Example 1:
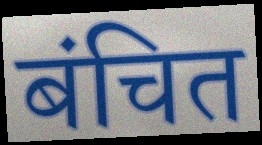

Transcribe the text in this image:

बंचित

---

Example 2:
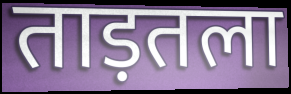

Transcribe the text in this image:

ताड़तला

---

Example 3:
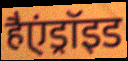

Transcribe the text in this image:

हैएंड्रॉइड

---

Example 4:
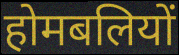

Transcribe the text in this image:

होमबलियों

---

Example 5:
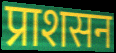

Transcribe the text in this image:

प्राशसन